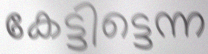
കേട്ടിട്ടെന്ന